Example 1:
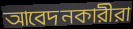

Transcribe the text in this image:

আবেদনকারীরা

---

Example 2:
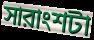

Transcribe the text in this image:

সারাংশটা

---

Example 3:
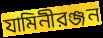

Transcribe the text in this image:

যামিনীরঞ্জন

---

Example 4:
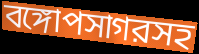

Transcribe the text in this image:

বঙ্গোপসাগরসহ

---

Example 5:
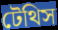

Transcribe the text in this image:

টেথিস